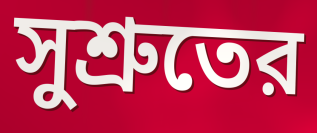
সুশ্রুতের